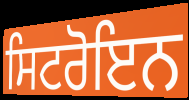
ਸਿਟਰੋਇਨ